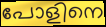
പോളിനെ